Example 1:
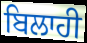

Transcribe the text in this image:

ਬਿਲਾਹੀ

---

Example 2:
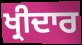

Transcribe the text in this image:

ਖ੍ਰੀਦਾਰ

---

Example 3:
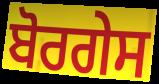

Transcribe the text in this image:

ਬੋਰਗੇਸ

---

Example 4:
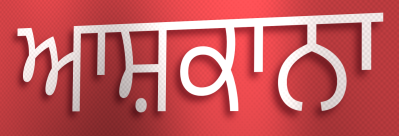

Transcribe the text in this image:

ਆਸ਼ਕਾਨਾ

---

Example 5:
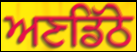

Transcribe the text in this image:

ਅਣਡਿੱਠੇ